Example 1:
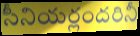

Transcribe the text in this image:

సీనియర్లందరినీ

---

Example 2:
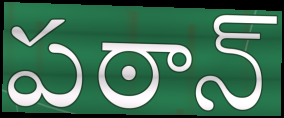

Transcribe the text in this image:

పఠాన్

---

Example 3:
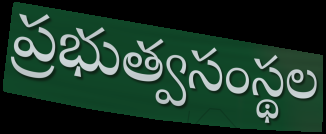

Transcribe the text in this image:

ప్రభుత్వసంస్థల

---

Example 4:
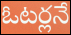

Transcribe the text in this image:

ఓటర్లనే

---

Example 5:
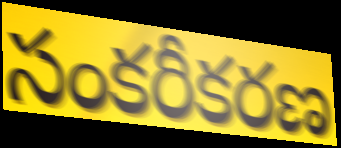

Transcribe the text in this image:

సంకరీకరణ